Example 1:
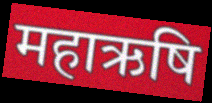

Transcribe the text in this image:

महाऋषि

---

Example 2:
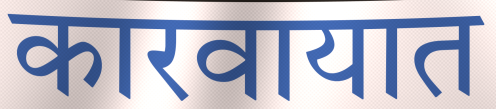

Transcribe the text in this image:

कारवायात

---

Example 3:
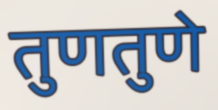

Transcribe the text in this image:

तुणतुणे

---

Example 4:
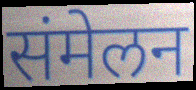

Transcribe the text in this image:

संमेलन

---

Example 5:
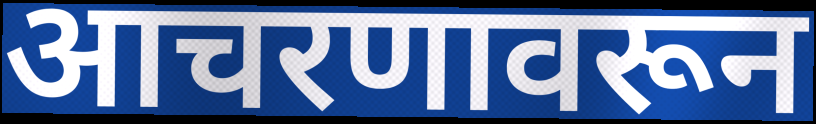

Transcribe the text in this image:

आचरणावरून